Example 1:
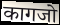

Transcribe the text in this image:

कागजो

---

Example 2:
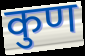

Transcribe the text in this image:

कुण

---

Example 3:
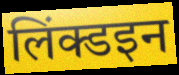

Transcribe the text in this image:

लिंक्डइन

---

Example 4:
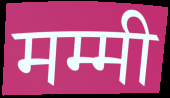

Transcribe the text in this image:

मम्मी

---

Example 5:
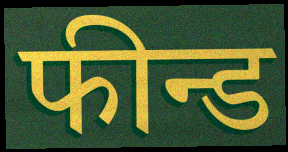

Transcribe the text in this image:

फीन्ड